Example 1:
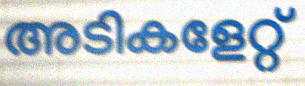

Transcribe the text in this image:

അടികളേറ്റ്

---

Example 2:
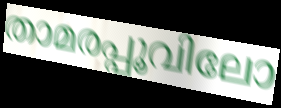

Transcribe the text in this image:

താമരപ്പൂവിലോ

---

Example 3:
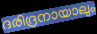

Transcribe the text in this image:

ദരിദ്രനായാലും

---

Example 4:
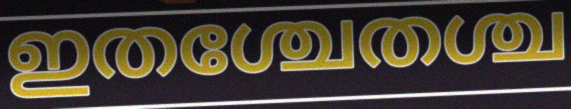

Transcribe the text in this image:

ഇതശ്ചേതശ്ച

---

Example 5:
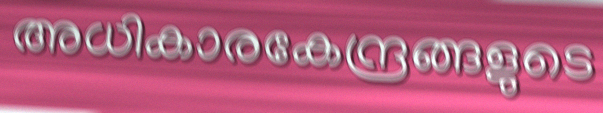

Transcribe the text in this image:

അധികാരകേന്ദ്രങ്ങളുടെ